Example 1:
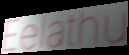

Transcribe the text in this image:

Eelathu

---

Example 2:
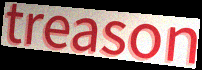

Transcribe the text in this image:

treason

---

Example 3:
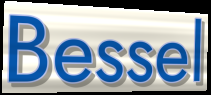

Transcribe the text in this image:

Bessel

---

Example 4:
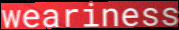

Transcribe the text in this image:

weariness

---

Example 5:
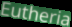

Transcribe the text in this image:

Eutheria